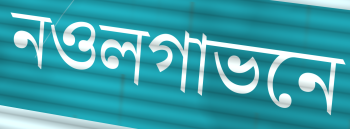
নওলগাভনে